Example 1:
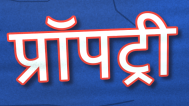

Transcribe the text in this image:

प्रॉपट्री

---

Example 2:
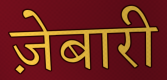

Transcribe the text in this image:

ज़ेबारी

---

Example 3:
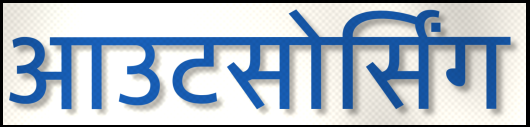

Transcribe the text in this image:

आउटसोर्सिंग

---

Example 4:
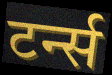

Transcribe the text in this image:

टर्न्स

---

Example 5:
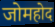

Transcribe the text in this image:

जोमहोद